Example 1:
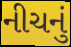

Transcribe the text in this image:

નીચનું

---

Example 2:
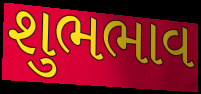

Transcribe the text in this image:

શુભભાવ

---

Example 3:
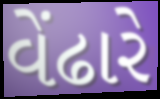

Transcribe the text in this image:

વેંઢારે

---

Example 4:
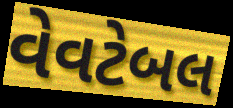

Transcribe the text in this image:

વેવટેબલ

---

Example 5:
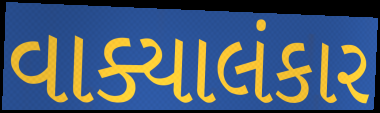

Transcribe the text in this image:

વાક્યાલંકાર